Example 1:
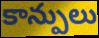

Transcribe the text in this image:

కాన్పులు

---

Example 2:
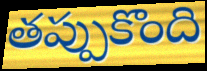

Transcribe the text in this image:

తప్పుకొంది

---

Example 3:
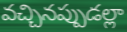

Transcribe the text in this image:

వచ్చినప్పుడల్లా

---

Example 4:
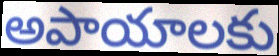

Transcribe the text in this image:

అపాయాలకు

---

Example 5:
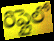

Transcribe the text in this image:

రిప్లైలో